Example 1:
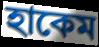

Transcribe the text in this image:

হাকেম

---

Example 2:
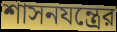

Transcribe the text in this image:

শাসনযন্ত্রের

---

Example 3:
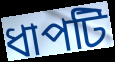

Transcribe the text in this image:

ধাপটি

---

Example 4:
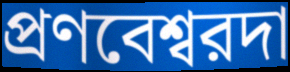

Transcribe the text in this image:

প্রণবেশ্বরদা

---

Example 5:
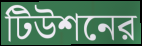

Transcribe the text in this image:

টিউশনের